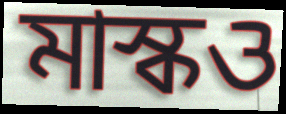
মাস্কও